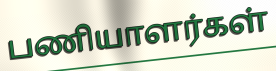
பணியாளர்கள்